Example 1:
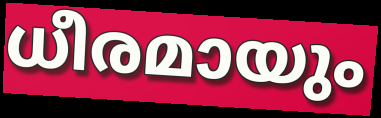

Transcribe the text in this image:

ധീരമായും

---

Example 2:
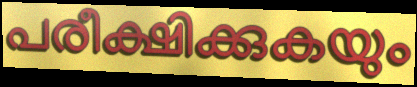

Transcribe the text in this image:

പരീക്ഷിക്കുകയും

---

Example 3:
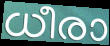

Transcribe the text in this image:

ധീരാ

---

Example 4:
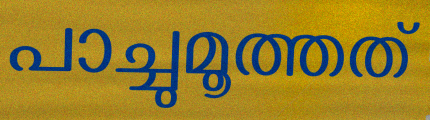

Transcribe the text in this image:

പാച്ചുമൂത്തത്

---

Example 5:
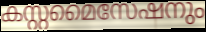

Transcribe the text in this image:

കസ്റ്റമൈസേഷനും